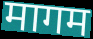
मागम